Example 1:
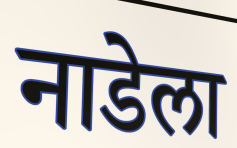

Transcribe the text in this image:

नाडेला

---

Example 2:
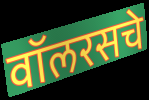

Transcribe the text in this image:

वॉलरसचे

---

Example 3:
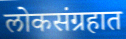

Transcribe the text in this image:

लोकसंग्रहात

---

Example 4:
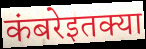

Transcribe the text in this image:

कंबरेइतक्या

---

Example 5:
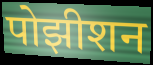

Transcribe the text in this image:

पोझीशन